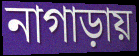
নাগাড়ায়